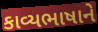
કાવ્યભાષાને